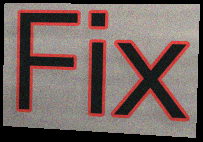
Fix